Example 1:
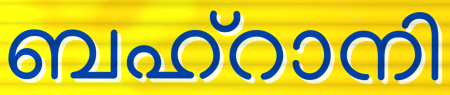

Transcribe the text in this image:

ബഹ്റാനി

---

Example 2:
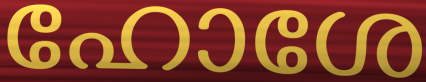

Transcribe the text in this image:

ഹോശേ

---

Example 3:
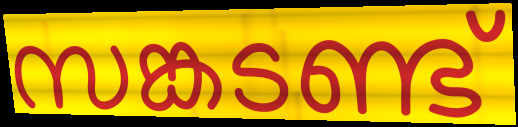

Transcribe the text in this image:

സങ്കടണ്ട്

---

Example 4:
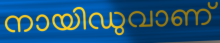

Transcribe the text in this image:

നായിഡുവാണ്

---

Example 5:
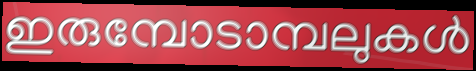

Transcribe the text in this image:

ഇരുമ്പോടാമ്പലുകൾ